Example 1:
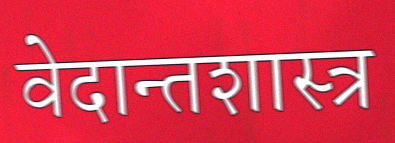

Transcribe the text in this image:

वेदान्तशास्त्र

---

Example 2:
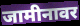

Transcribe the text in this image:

जामीनावर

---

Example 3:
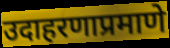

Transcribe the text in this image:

उदाहरणाप्रमाणे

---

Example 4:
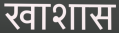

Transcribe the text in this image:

खाशास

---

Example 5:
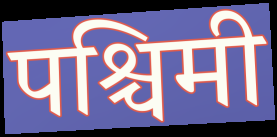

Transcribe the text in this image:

पश्चिमी